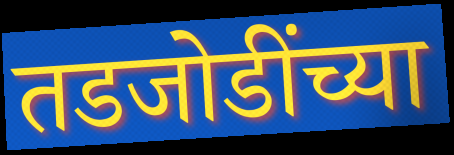
तडजोडींच्या